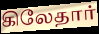
கிலேதார்